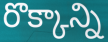
రొక్కాన్ని